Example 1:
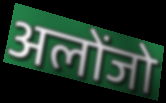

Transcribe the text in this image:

अलोंजो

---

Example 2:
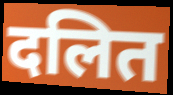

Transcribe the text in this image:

दलित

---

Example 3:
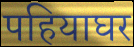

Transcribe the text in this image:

पहियाघर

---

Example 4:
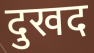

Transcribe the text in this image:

दुखद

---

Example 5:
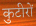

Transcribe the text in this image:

कुटीरों